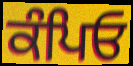
ਕੰਪਿਓ